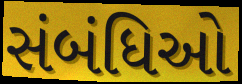
સંબંધિઓ